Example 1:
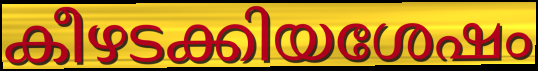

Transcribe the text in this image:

കീഴടക്കിയശേഷം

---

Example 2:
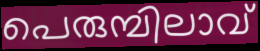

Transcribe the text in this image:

പെരുമ്പിലാവ്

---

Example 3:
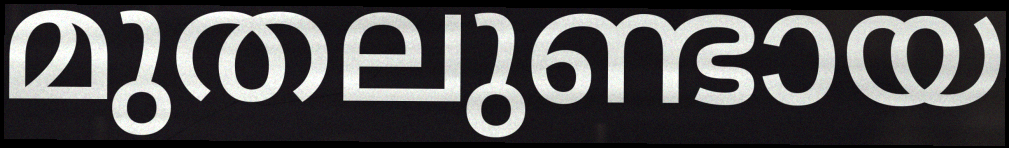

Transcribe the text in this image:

മുതലുണ്ടായ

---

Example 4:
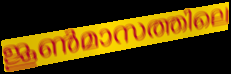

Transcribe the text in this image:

ജൂൺമാസത്തിലെ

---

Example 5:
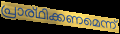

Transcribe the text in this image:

പ്രാര്ഥിക്കണമെന്ന്